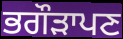
ਭਗੌੜਾਪਣ